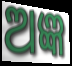
ଅଜ୍ଞ